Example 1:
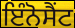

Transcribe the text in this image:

ਇੰਨੋਸੈਂਟ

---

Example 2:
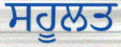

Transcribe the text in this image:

ਸਹੂਲਤ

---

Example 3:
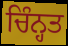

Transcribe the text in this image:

ਚਿੰਨ੍ਹਤ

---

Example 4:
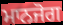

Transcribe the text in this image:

ਮਾਨਜੋਗ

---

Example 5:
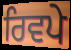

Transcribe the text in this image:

ਰਿਵਪੇ